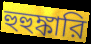
হুহুঙ্কারি